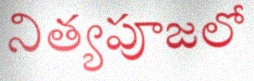
నిత్యపూజలో